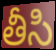
తీసి